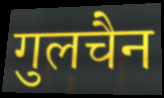
गुलचैन